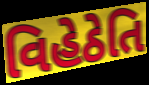
વિહેઠેતિ